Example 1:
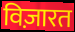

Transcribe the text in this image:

विज़ारत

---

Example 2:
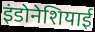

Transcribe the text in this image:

इंडोनेशियाई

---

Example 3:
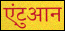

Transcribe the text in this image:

एंटुआन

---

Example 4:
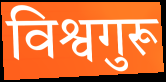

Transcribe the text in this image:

विश्वगुरू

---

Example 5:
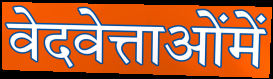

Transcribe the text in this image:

वेदवेत्ताओंमें